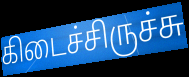
கிடைச்சிருச்சு